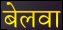
बेलवा